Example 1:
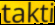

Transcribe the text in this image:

takti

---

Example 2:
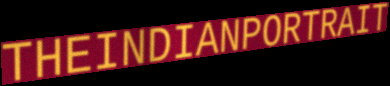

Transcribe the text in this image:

THEINDIANPORTRAIT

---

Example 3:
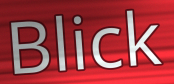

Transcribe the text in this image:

Blick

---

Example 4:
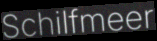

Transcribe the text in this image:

Schilfmeer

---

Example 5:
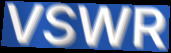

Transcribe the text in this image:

VSWR